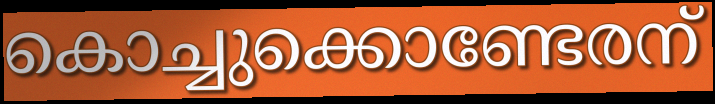
കൊച്ചുക്കൊണ്ടേരന്